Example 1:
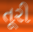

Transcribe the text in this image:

તૂરી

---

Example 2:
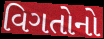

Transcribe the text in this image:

વિગતોનો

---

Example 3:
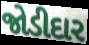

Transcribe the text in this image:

જોડીદાર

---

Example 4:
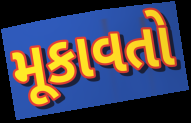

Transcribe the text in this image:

મૂકાવતો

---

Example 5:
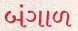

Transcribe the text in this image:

બંગાળ